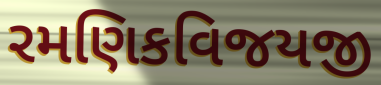
રમણિકવિજયજી